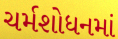
ચર્મશોધનમાં